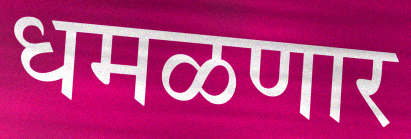
धमळणार